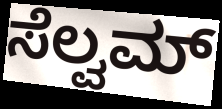
ಸೆಲ್ವಮ್